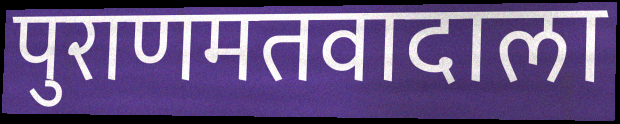
पुराणमतवादाला